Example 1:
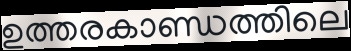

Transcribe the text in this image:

ഉത്തരകാണ്ഡത്തിലെ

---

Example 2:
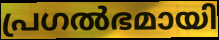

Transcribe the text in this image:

പ്രഗൽഭമായി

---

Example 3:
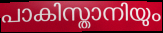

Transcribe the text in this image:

പാകിസ്താനിയും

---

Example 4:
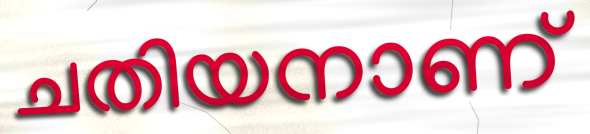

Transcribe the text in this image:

ചതിയനാണ്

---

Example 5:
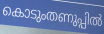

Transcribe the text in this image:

കൊടുംതണുപ്പിൽ